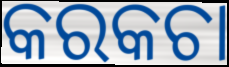
କରକଚା